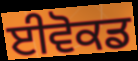
ਈਵੋਕਡ